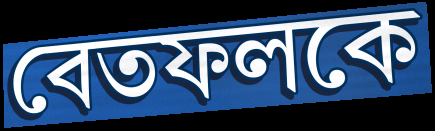
বেতফলকে